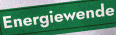
Energiewende